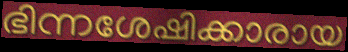
ഭിന്നശേഷിക്കാരായ